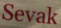
Sevak